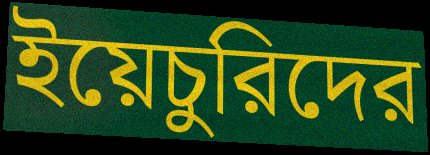
ইয়েচুরিদের